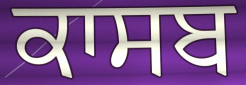
ਕਾਸਬ